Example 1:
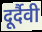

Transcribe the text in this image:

दूर्दैवी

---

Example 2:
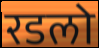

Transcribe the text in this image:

रडलो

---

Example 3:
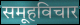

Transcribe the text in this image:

समूहविचार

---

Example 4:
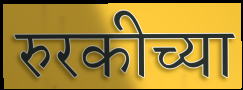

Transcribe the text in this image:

रुरकीच्या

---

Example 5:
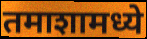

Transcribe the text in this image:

तमाशामध्ये